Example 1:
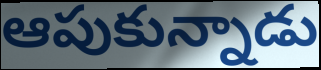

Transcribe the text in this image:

ఆపుకున్నాడు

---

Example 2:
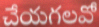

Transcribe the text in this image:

చేయగలవో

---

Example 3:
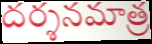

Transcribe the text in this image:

దర్శనమాత్ర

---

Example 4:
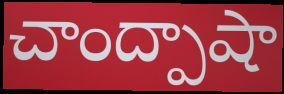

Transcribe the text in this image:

చాంద్పాషా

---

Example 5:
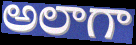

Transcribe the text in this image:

అలాగా